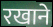
रखाने